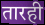
तारही